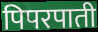
पिपरपाती